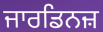
ਜਾਰਡਿਨਜ਼